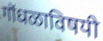
गोंधळाविषयी